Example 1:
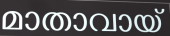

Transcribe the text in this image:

മാതാവായ്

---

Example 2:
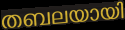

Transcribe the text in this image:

തബലയായി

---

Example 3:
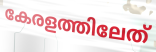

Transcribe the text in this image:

കേരളത്തിലേത്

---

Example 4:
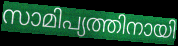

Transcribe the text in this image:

സാമിപ്യത്തിനായി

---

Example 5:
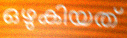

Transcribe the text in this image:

ഒഴുകിയത്